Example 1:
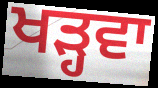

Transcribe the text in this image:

ਖੜ੍ਹਵਾ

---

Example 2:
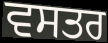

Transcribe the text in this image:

ਵਸਤਰ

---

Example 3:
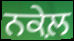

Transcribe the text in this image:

ਨਕੇਲ਼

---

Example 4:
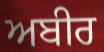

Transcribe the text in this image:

ਅਬੀਰ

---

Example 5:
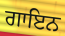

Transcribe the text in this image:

ਗਾਇਨ